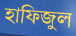
হাফিজুল